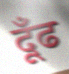
दूँढ